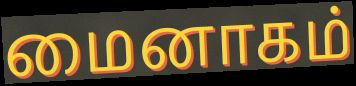
மைனாகம்